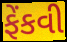
ફેંકવી